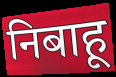
निबाहू